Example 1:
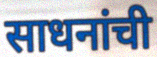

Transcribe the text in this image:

साधनांची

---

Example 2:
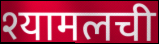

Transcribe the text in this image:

श्यामलची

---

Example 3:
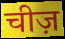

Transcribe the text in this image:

चीज़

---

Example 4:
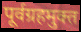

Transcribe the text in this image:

पूर्वग्रहमुक्त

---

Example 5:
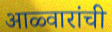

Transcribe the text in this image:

आळ्वारांची